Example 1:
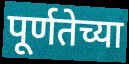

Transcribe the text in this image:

पूर्णतेच्या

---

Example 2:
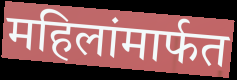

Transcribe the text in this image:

महिलांमार्फत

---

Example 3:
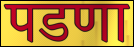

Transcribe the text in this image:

पडणा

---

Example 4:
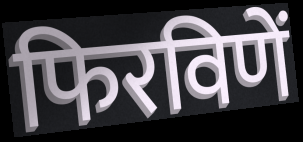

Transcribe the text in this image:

फिरविणें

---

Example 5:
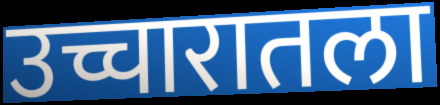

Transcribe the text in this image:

उच्चारातला